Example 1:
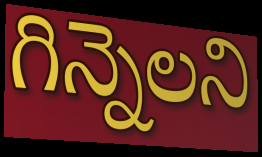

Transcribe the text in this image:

గిన్నెలని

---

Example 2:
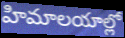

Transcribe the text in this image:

హిమాలయాల్లో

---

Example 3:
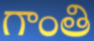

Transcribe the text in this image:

గాంతి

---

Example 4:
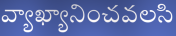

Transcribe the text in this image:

వ్యాఖ్యానించవలసి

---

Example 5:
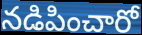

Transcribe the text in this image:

నడిపించారో